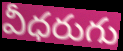
వీధరుగు